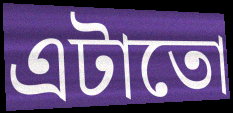
এটাতো